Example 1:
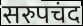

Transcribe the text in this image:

सरुपचंद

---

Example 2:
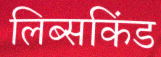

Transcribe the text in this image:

लिब्सकिंड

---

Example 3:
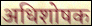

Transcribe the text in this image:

अधिशोषक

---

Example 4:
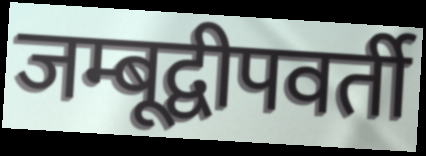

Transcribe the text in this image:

जम्बूद्वीपवर्ती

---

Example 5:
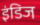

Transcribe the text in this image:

इंडिज